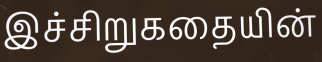
இச்சிறுகதையின்